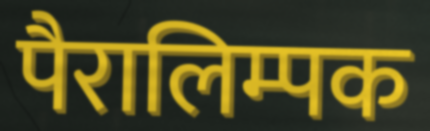
पैरालिम्पक